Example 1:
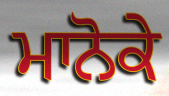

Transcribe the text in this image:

ਮਾਨੋਕੇ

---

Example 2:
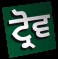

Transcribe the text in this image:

ਟ੍ਰੋਵ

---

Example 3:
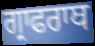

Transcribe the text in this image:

ਗ੍ਰਾਫਰਾਥ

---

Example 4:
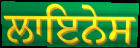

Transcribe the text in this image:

ਲਾਇਨੇਸ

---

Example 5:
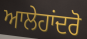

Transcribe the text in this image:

ਆਲੇਹਾਂਦਰੋ